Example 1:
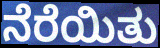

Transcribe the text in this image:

ನೆರೆಯಿತು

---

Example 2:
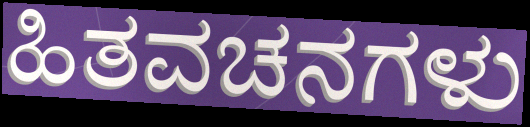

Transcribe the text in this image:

ಹಿತವಚನಗಳು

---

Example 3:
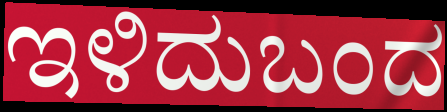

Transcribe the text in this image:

ಇಳಿದುಬಂದ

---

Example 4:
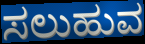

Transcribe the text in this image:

ಸಲುಹುವ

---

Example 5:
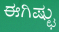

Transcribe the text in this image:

ಈಗಿಷ್ಟು